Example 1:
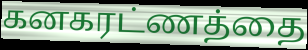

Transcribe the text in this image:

கனகரட்ணத்தை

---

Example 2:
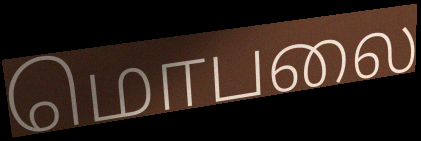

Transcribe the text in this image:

மொபலை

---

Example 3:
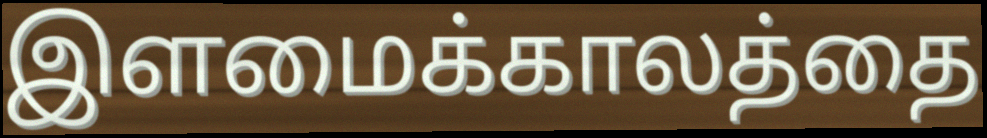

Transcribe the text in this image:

இளமைக்காலத்தை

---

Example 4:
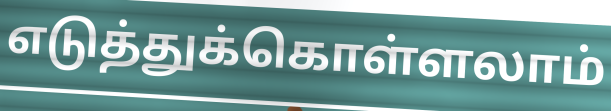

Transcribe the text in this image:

எடுத்துக்கொள்ளலாம்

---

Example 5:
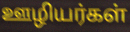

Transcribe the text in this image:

ஊழியர்கள்